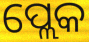
ପ୍ଲେକ